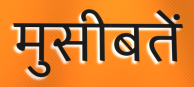
मुसीबतें